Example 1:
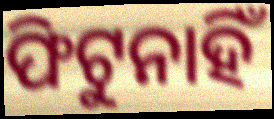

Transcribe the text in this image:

ଫିଟୁନାହିଁ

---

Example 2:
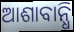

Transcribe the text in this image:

ଆଶାବାନ୍ଧି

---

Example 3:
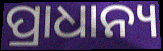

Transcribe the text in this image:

ପ୍ରାଧାନ୍ୟ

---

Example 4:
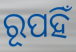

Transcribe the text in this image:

ରୂପହିଁ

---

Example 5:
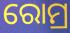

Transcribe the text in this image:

ରୋମ୍ର